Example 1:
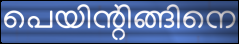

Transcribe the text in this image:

പെയിന്റിങ്ങിനെ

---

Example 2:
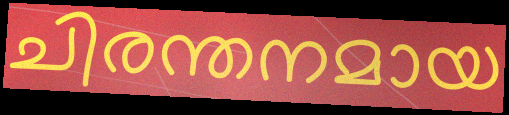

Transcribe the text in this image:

ചിരന്തനമായ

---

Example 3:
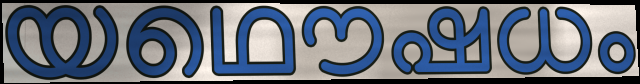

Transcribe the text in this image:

യഥൌഷധം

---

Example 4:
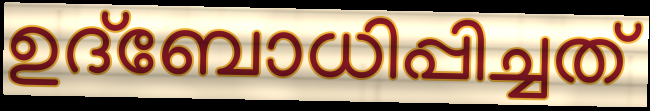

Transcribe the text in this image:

ഉദ്ബോധിപ്പിച്ചത്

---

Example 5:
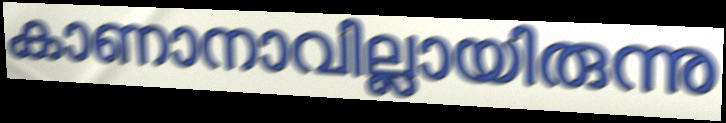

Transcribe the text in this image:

കാണാനാവില്ലായിരുന്നു